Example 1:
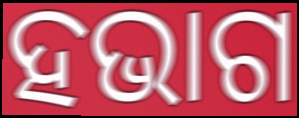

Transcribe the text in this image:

ହଭାଗ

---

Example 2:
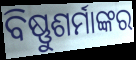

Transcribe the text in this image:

ବିଷ୍ଣୁଶର୍ମାଙ୍କର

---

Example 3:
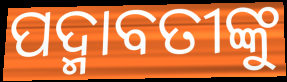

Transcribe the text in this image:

ପଦ୍ମାବତୀଙ୍କୁ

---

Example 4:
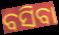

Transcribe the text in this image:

ବସିବା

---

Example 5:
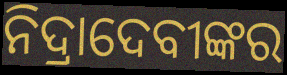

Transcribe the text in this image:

ନିଦ୍ରାଦେବୀଙ୍କର